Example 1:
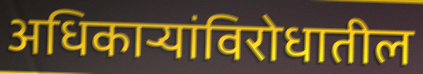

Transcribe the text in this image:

अधिकाऱ्यांविरोधातील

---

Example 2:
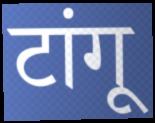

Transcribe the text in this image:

टांगू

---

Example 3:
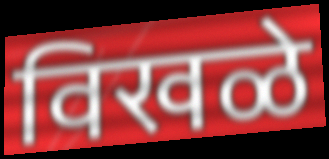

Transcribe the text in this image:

विखळे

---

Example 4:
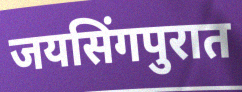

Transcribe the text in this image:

जयसिंगपुरात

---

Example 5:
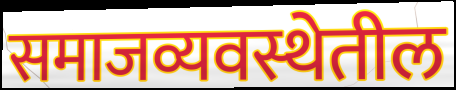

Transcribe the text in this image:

समाजव्यवस्थेतील